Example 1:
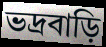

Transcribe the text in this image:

ভদ্রবাড়ি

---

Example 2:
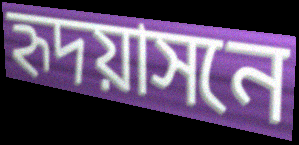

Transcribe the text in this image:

হৃদয়াসনে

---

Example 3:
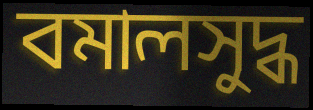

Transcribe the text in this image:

বমালসুদ্ধ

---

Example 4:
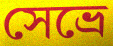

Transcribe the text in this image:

সেভ্রে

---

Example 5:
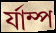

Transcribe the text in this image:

র্যাম্প